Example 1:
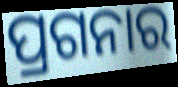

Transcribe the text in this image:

ପ୍ରଗନାର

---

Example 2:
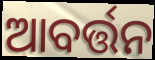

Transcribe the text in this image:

ଆବର୍ତ୍ତନ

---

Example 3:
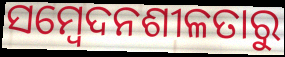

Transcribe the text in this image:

ସମ୍ବେଦନଶୀଳତାରୁ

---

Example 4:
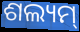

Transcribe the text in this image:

ଶଲ୍ୟମ୍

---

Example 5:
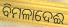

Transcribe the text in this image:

ବିମଳାଦେଈ